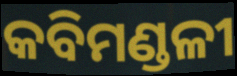
କବିମଣ୍ଡଳୀ